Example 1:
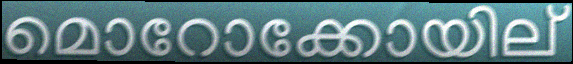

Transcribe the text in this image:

മൊറോക്കോയില്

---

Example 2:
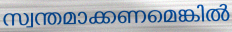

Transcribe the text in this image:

സ്വന്തമാക്കണമെങ്കിൽ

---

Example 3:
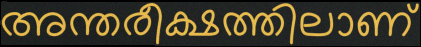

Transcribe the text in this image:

അന്തരീക്ഷത്തിലാണ്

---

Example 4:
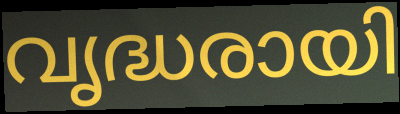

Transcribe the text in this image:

വൃദ്ധരായി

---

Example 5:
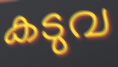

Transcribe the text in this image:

കടുവ